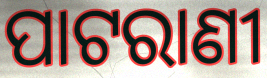
ପାଟରାଣୀ